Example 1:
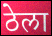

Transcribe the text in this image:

ठेला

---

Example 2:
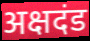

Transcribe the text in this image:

अक्षदंड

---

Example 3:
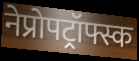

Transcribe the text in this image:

नेप्रोपट्रॉफ्स्क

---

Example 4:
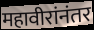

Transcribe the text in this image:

महावीरांनंतर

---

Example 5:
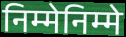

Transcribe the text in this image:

निम्मेनिम्मे